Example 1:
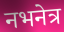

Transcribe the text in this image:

नभनेत्र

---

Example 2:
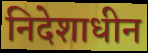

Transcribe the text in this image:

निदेशाधीन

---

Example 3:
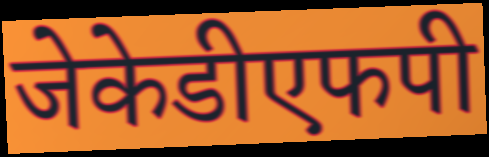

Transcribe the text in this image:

जेकेडीएफपी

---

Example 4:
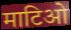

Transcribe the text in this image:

माटिओ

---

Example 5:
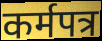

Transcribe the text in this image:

कर्मपत्र